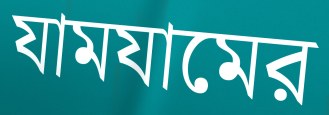
যামযামের